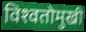
विश्वतोमुखी